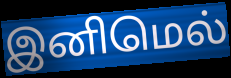
இனிமெல்